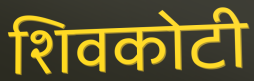
शिवकोटी